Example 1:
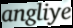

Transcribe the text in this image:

angliye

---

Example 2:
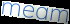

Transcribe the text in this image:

meam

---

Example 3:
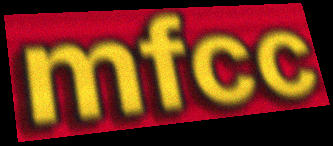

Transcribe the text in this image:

mfcc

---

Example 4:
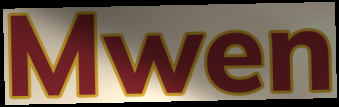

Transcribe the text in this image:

Mwen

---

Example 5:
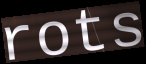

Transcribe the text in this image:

rots